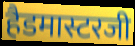
हैडमास्टरजी